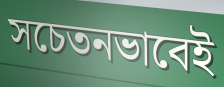
সচেতনভাবেই